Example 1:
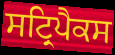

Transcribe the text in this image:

ਸਟ੍ਰਿਪੈਕਸ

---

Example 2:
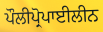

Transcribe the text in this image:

ਪੌਲੀਪ੍ਰੋਪਾਈਲੀਨ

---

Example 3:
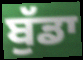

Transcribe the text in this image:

ਬੁੱਡਾ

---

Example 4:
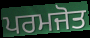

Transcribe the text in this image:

ਪਰਮਜੋਤ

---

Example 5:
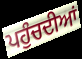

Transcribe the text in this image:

ਪਹੁੰਚਦੀਆਂ